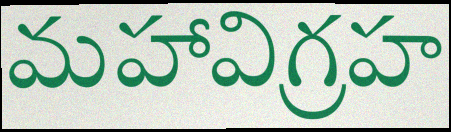
మహావిగ్రహ